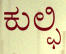
ಕುಲ್ಫಿ